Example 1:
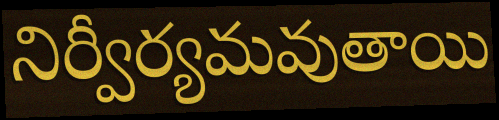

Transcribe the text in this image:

నిర్వీర్యమవుతాయి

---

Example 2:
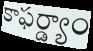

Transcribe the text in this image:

కాఫర్డ్యాం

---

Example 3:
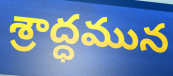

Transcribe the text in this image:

శ్రాద్ధమున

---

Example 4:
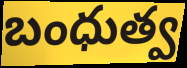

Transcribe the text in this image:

బంధుత్వ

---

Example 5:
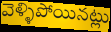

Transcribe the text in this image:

వెళ్ళిపోయినట్లు